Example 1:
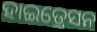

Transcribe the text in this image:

ହାଇଡ୍ରେସନ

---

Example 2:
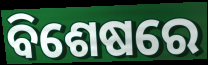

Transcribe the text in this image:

ବିଶେଷରେ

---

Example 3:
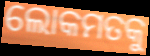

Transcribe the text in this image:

ଲୋକମତକୁ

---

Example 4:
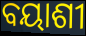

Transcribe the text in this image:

ବୟାଶୀ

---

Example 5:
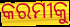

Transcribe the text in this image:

କରମୀକୁ